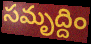
సమృద్దిం